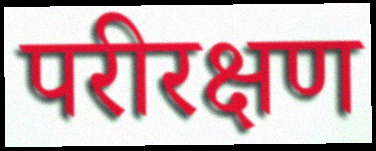
परीरक्षण